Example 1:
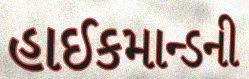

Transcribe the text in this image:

હાઈકમાન્ડની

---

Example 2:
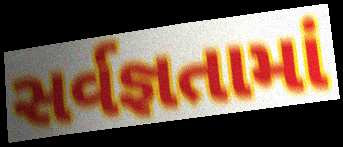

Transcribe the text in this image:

સર્વજ્ઞતામાં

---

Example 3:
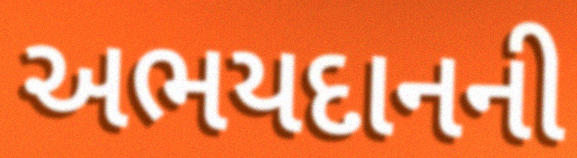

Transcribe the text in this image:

અભયદાનની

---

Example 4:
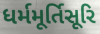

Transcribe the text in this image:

ધર્મમૂર્તિસૂરિ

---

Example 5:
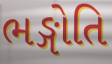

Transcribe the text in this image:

ભઙ્ગોતિ